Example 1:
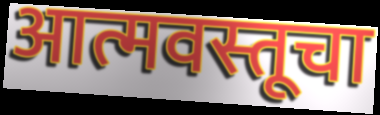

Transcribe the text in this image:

आत्मवस्तूचा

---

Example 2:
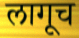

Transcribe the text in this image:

लागूच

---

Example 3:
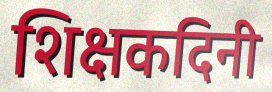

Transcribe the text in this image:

शिक्षकदिनी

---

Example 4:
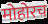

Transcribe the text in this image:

मोहोरच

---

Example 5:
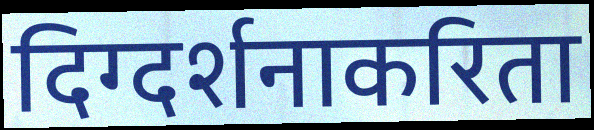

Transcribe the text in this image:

दिग्दर्शनाकरिता